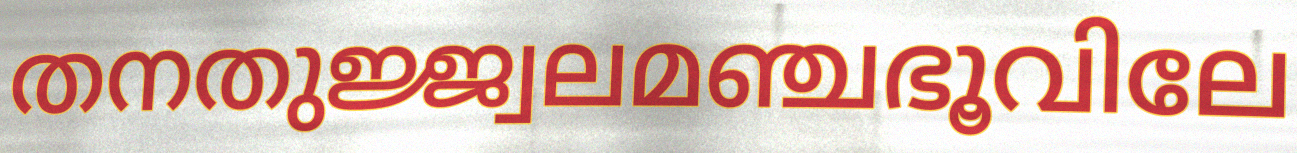
തനതുജ്ജ്വലമഞ്ചഭൂവിലേ